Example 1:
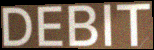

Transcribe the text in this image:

DEBIT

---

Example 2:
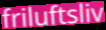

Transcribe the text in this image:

friluftsliv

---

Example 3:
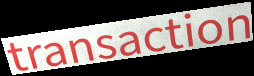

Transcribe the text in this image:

transaction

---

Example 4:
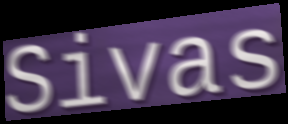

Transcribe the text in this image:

Sivas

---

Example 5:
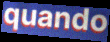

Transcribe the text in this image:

quando